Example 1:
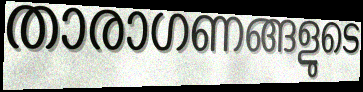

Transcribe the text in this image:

താരാഗണങ്ങളുടെ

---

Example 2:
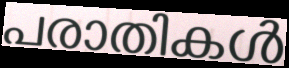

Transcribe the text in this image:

പരാതികൾ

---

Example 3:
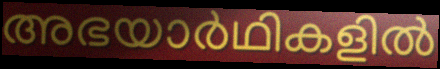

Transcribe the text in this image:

അഭയാർഥികളിൽ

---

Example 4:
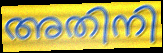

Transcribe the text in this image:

അതിനി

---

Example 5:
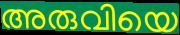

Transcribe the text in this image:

അരുവിയെ